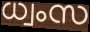
ധ്വംസ